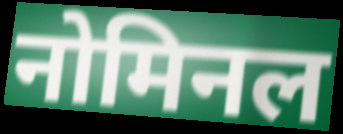
नोमिनल